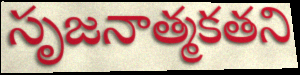
సృజనాత్మకతని